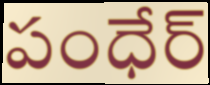
పంధేర్